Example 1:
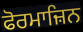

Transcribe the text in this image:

ਫੋਰਮਾਜ਼ਿਨ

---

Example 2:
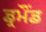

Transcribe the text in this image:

ਡ੍ਰਮੌਂਡ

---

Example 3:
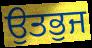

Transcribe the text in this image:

ਉਤਭੁਜ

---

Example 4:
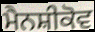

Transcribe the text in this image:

ਮੈਨਸ਼ੀਕੋਵ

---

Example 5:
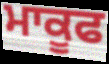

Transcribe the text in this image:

ਮਾਕੂਫ